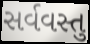
સર્વવસ્તુ